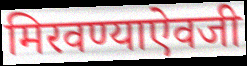
मिरवण्याऐवजी